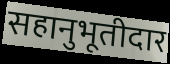
सहानुभूतीदार